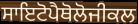
ਸਾਇਟੋਪੈਥੋਲੋਜੀਕਲ